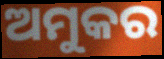
ଅମୁକର